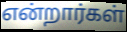
என்றார்கள்